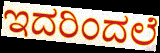
ಇದರಿಂದಲೆ